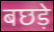
बछड़े